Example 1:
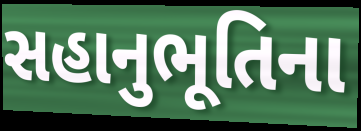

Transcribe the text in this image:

સહાનુભૂતિના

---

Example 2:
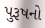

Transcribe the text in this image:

પુરૂષનો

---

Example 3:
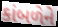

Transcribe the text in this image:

કાંબળેને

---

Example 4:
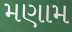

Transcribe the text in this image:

મણામ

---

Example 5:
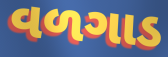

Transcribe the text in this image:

વળગાડ